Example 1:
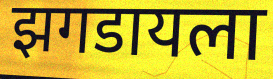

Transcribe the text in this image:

झगडायला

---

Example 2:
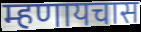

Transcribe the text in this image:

म्हणायचास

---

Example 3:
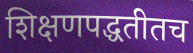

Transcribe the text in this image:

शिक्षणपद्धतीतच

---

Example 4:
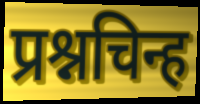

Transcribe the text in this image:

प्रश्नचिन्ह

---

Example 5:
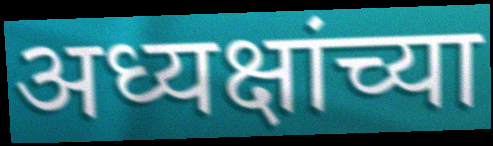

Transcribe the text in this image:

अध्यक्षांच्या